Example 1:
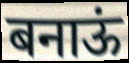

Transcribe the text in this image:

बनाऊं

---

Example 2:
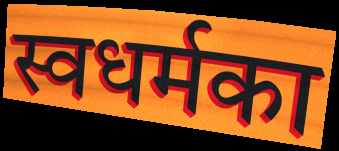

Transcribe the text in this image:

स्वधर्मका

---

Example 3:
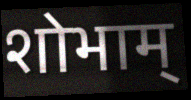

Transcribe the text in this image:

शोभाम्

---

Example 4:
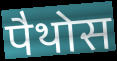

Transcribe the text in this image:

पैथोस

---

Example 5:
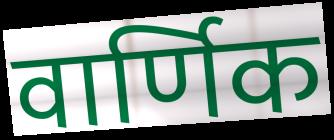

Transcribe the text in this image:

वार्णिक